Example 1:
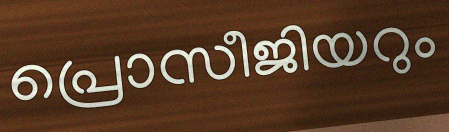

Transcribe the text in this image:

പ്രൊസീജിയറും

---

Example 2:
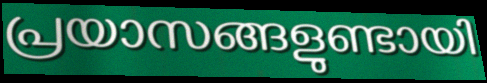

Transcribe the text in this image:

പ്രയാസങ്ങളുണ്ടായി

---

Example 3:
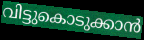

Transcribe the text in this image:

വിട്ടുകൊടുക്കാൻ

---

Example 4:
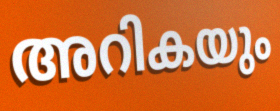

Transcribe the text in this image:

അറികയും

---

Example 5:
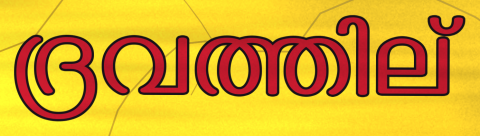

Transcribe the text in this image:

ദ്രവത്തില്